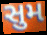
સુમ